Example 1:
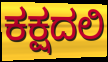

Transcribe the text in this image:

ಕಕ್ಷದಲಿ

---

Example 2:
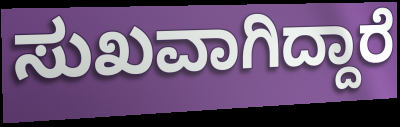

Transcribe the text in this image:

ಸುಖವಾಗಿದ್ದಾರೆ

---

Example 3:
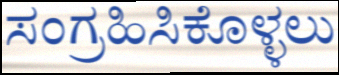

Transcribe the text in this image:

ಸಂಗ್ರಹಿಸಿಕೊಳ್ಳಲು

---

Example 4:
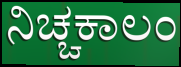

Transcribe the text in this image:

ನಿಚ್ಚಕಾಲಂ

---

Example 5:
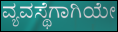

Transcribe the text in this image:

ವ್ಯವಸ್ಥೆಗಾಗಿಯೇ